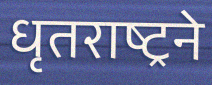
धृतराष्ट्रने